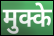
मुक्के